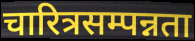
चारित्रसम्पन्नता